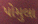
પોમુલા